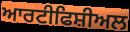
ਆਰਟੀਫਿਸ਼ੀਅਲ